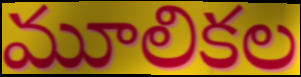
మూలికల